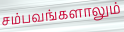
சம்பவங்களாலும்